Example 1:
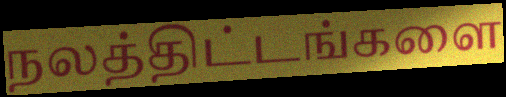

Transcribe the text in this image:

நலத்திட்டங்களை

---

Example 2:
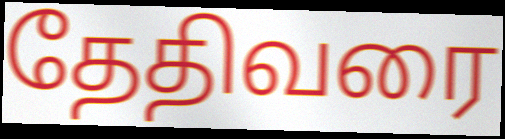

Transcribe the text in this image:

தேதிவரை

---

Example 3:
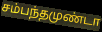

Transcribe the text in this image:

சம்பந்தமுண்டா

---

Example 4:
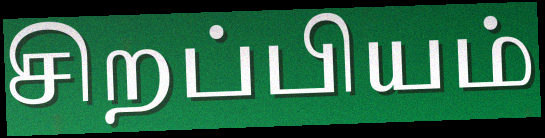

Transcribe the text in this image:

சிறப்பியம்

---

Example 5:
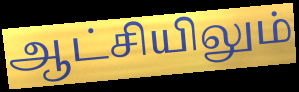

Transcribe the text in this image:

ஆட்சியிலும்